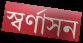
স্বর্ণাসন